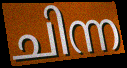
ചിന്ന